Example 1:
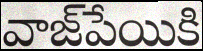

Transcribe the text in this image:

వాజ్‌పేయికి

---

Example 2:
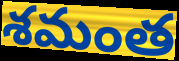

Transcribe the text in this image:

శమంత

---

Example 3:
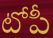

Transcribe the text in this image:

టోపీ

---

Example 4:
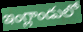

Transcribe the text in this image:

ఇంగ్లాండులో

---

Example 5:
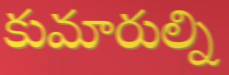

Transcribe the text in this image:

కుమారుల్ని